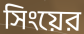
সিংয়ের